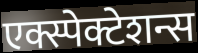
एक्स्पेक्टेशन्स